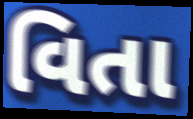
વિતા